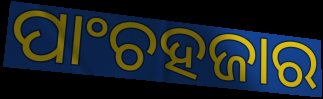
ପାଂଚହଜାର